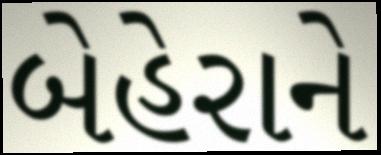
બેહેરાને